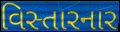
વિસ્તારનાર